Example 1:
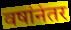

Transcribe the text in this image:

वषांनंतर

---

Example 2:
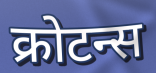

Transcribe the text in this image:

क्रोटन्स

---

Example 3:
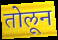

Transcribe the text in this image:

तोलून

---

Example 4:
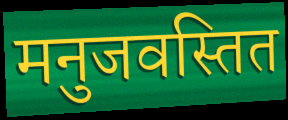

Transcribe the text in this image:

मनुजवस्तित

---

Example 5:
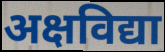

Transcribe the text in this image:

अक्षविद्या